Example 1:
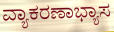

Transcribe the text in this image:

ವ್ಯಾಕರಣಾಭ್ಯಾಸ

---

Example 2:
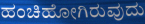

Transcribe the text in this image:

ಹಂಚಿಹೋಗಿರುವುದು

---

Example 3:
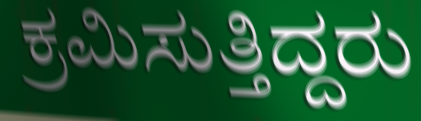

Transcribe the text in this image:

ಕ್ರಮಿಸುತ್ತಿದ್ದರು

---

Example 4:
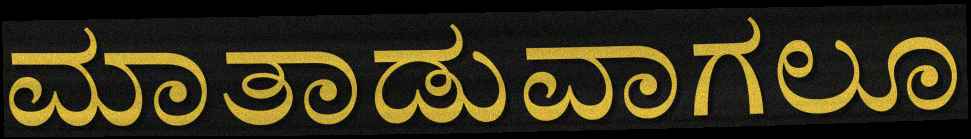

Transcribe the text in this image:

ಮಾತಾಡುವಾಗಲೂ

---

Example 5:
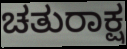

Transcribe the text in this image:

ಚತುರಾಕ್ಷ